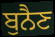
ਬੁਨੈਣ